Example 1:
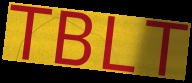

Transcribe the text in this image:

TBLT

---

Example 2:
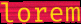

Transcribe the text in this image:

lorem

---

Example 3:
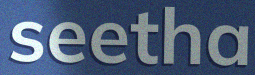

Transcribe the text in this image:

seetha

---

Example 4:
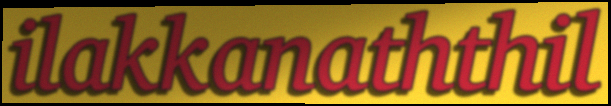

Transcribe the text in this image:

ilakkanaththil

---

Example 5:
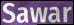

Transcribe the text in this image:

Sawar